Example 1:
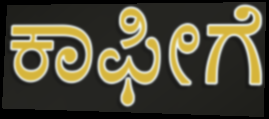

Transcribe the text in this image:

ಕಾಫೀಗೆ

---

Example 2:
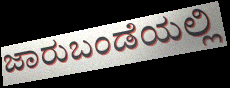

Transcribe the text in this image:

ಜಾರುಬಂಡೆಯಲ್ಲಿ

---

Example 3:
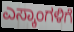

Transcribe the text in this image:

ಎಸ್ಕಾಂಗಳಿಗೆ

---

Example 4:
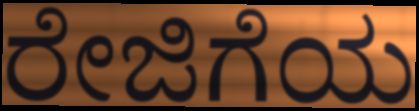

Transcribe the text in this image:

ರೇಜಿಗೆಯ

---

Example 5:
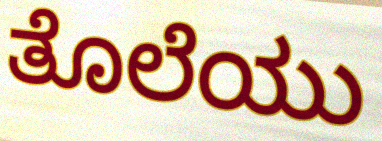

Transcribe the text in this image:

ತೊಲೆಯು